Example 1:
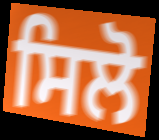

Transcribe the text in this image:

ਸਿਲੋ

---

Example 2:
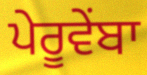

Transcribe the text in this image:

ਪੇਰੂਵੇਂਬਾ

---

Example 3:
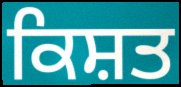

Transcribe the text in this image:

ਕਿਸ਼ਤ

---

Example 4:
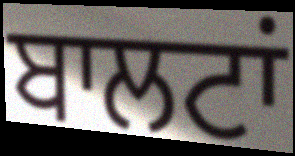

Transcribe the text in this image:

ਬਾਲਟਾਂ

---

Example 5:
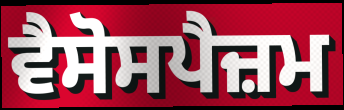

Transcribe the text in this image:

ਵੈਸੋਸਪੈਜ਼ਮ